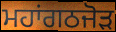
ਮਹਾਂਗਠਜੋਡ਼